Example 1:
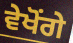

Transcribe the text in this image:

ਵੇਖੋਂਗੇ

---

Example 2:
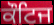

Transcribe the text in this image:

ਕੌਟਿਜ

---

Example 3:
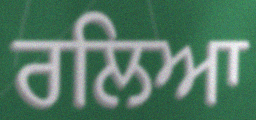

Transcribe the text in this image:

ਰਲਿਆ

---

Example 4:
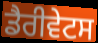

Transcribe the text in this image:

ਡੈਰੀਵੇਟਸ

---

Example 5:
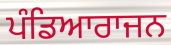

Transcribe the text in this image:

ਪੰਡਿਆਰਾਜਨ